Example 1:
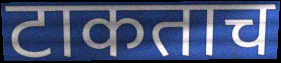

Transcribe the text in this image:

टाकताच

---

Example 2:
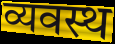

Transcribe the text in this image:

व्यवस्थ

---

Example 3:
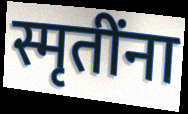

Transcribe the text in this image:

स्मृतींना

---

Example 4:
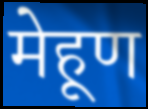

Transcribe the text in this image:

मेहूण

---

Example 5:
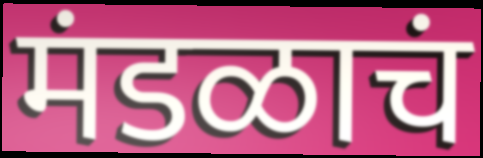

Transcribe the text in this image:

मंडळाचं